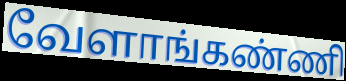
வேளாங்கண்ணி